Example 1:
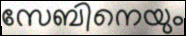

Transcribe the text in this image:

സേബിനെയും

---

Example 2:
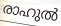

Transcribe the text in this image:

രാഹുൽ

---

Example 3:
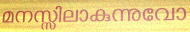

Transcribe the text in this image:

മനസ്സിലാകുന്നുവോ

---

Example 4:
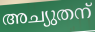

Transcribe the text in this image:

അച്യുതന്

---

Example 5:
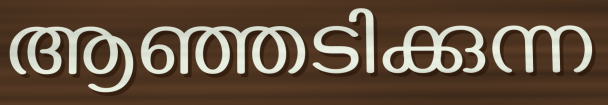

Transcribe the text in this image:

ആഞ്ഞടിക്കുന്ന